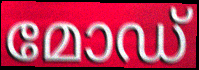
മോഡ്